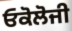
ਓਕੋਲੋਜੀ